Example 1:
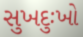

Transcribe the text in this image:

સુખદુઃખો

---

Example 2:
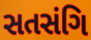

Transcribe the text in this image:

સતસંગિ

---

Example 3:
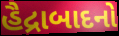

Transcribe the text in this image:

હૈદ્રાબાદનો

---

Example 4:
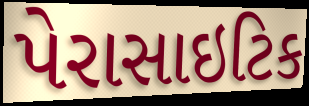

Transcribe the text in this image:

પેરાસાઇટિક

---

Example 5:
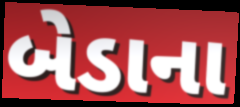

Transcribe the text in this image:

બેડાના